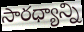
సారధ్యాన్ని